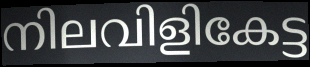
നിലവിളികേട്ട